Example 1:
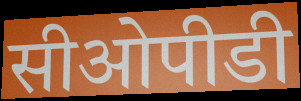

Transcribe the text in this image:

सीओपीडी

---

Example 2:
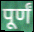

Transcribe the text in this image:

पूर्णं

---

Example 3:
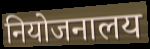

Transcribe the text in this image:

नियोजनालय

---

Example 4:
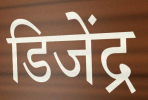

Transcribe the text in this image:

डिजेंद्र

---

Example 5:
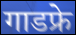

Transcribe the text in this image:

गाडफ्रे